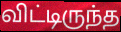
விட்டிருந்த